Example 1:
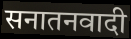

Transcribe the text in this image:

सनातनवादी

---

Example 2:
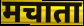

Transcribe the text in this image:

मचाता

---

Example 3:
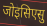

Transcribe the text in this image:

जोइसिएसु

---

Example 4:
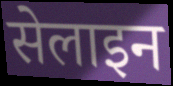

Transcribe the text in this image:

सेलाइन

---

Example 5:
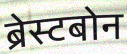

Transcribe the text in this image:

ब्रेस्टबोन